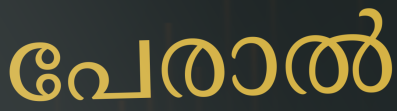
പേരാൽ